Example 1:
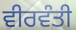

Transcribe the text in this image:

ਵੀਰਵੰਤੀ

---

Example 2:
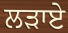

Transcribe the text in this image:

ਲੜਾਏ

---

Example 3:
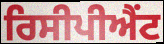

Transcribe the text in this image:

ਰਿਸੀਪੀਐਂਟ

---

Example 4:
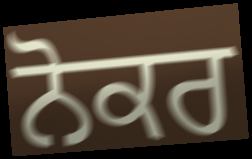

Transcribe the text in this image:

ਨੋਕਰ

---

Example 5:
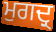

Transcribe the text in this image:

ਮੁਗਦ੍ਰ